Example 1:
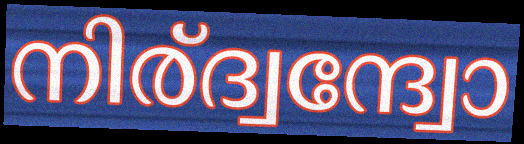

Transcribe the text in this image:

നിര്ദ്വന്ദ്വോ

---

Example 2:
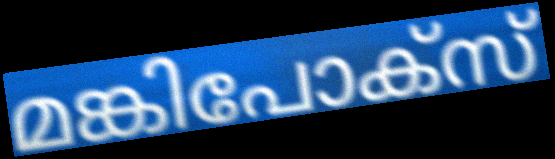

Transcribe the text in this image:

മങ്കിപോക്സ്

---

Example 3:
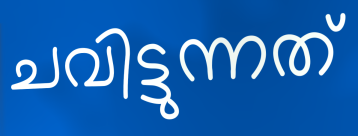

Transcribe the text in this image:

ചവിട്ടുന്നത്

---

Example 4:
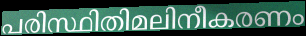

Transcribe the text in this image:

പരിസ്ഥിതിമലിനീകരണം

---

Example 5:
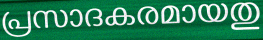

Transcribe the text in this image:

പ്രസാദകരമായതു